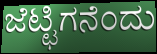
ಜೆಟ್ಟಿಗನೆಂದು